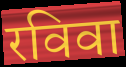
रविवा